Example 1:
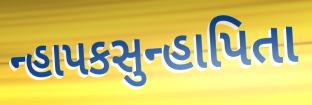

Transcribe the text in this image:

ન્હાપકસુન્હાપિતા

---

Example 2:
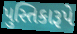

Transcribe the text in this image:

પુસ્તિકારૂપે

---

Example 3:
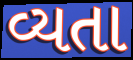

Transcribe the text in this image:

વ્યતા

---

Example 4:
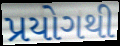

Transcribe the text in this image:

પ્રયોગથી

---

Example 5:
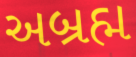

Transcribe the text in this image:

અબ્રહ્મ